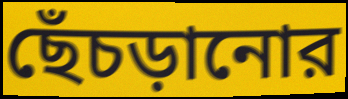
ছেঁচড়ানোর